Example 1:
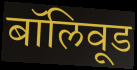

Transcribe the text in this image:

बॉलिवूड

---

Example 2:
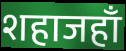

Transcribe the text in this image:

शहाजहाँ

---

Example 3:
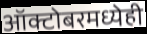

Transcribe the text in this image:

ऑक्टोबरमध्येही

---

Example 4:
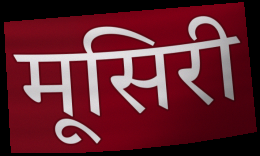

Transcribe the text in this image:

मूसिरी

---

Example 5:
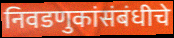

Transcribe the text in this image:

निवडणुकांसंबंधीचे